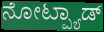
ನೋಟ್ಪ್ಯಾಡ್